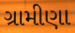
ગ્રામીણા